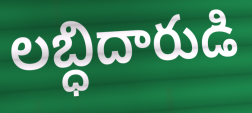
లబ్ధిదారుడి